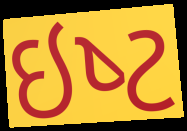
ઇષ્‍ટ